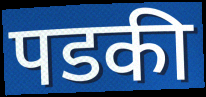
पडकी